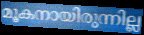
മൂകനായിരുന്നില്ല